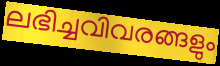
ലഭിച്ചവിവരങ്ങളും